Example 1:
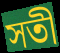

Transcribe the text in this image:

সতী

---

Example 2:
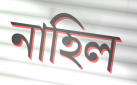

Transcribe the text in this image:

নাহিল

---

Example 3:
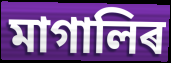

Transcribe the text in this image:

মাগালিৰ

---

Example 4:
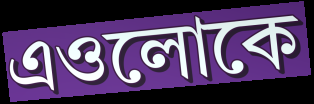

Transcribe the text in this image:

এওলোকে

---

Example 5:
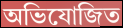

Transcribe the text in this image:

অভিযোজিত